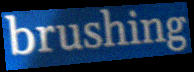
brushing